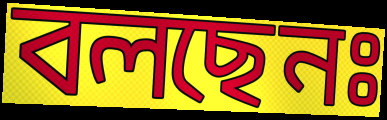
বলছেনঃ